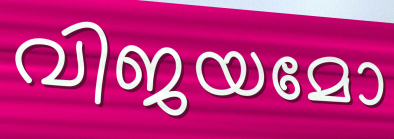
വിജയമോ